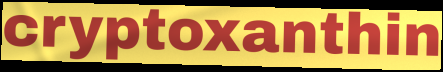
cryptoxanthin